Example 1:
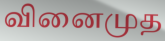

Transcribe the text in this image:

வினைமுத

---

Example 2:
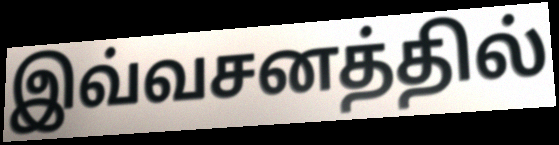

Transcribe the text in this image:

இவ்வசனத்தில்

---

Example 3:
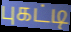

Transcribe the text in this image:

புகட்டி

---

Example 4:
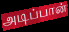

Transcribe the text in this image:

அடிப்பான்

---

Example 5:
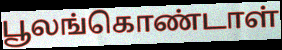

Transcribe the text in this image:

பூலங்கொண்டாள்